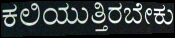
ಕಲಿಯುತ್ತಿರಬೇಕು